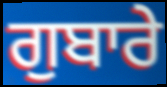
ਗੁਬਾਰੇ